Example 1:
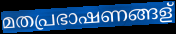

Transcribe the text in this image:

മതപ്രഭാഷണങ്ങള്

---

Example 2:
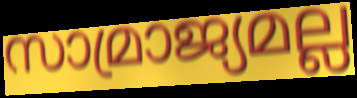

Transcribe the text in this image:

സാമ്രാജ്യമല്ല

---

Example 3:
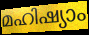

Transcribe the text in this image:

മഹിഷ്യാം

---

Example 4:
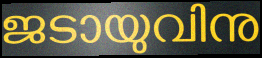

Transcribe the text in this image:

ജടായുവിനു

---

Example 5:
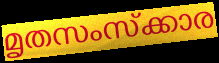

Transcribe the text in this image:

മൃതസംസ്‌ക്കാര